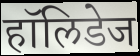
हॉलिडेज